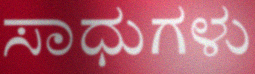
ಸಾಧುಗಳು